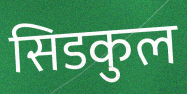
सिडकुल